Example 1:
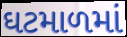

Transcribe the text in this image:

ઘટમાળમાં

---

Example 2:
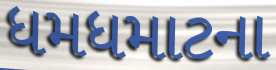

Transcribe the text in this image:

ધમધમાટના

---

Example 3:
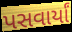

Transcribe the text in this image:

પસવાર્યાં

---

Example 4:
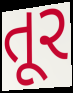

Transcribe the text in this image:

તૂર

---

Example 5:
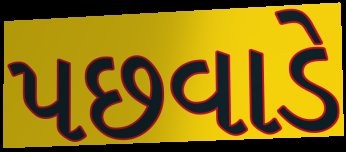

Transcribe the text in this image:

પછવાડે